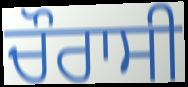
ਚੌਰਾਸੀ